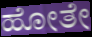
ಹೋತೇ